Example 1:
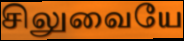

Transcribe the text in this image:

சிலுவையே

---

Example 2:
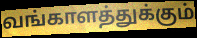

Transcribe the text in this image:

வங்காளத்துக்கும்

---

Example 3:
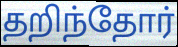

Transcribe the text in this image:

தறிந்தோர்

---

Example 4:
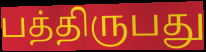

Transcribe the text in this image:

பத்திருபது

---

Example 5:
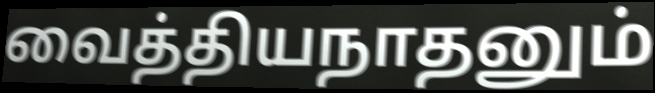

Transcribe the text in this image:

வைத்தியநாதனும்